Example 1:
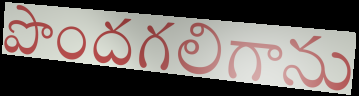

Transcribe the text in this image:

పొందగలిగాను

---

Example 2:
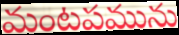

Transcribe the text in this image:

మంటపమును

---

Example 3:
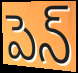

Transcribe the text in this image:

పెన్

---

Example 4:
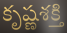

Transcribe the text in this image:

కృష్ణశక్తి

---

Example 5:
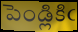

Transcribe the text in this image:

పెండ్లికిఁ